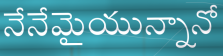
నేనేమైయున్నానో